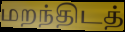
மறந்திடத்